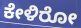
ಕೇಳಿರೋ